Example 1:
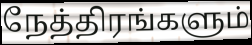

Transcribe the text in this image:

நேத்திரங்களும்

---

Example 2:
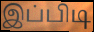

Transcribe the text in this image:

இப்பிடி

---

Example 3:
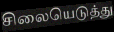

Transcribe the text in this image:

சிலையெடுத்து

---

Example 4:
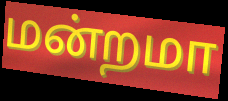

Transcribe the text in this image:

மன்றமா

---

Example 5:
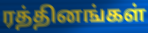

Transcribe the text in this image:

ரத்தினங்கள்